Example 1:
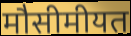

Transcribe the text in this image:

मौसीमीयत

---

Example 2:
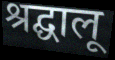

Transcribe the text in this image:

श्रद्घालू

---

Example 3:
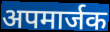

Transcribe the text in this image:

अपमार्जक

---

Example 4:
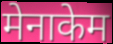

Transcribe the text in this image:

मेनाकेम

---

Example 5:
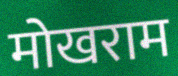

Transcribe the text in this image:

मोखराम